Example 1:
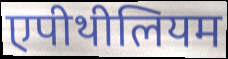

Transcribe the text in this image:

एपीथीलियम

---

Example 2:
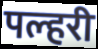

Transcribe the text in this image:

पल्हरी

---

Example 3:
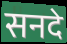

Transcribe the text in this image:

सनदे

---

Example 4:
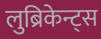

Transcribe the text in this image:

लुब्रिकेन्ट्स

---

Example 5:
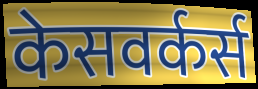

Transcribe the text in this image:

केसवर्कर्स